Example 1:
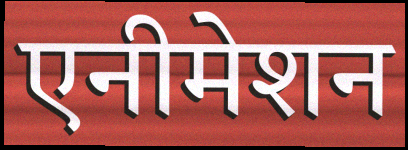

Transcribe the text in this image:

एनीमेशन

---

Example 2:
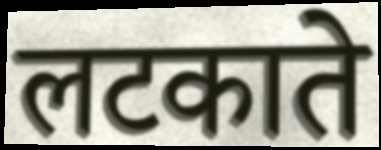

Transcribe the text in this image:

लटकाते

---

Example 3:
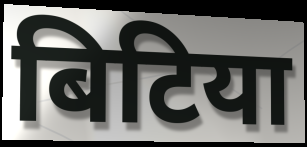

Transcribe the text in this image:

बिटिया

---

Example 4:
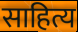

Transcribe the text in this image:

साहित्य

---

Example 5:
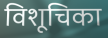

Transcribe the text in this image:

विशूचिका